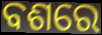
ବଶରେ